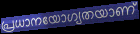
പ്രധാനയോഗ്യതയാണ്